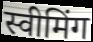
स्वीमिंग